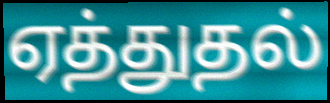
ஏத்துதல்